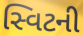
સ્વિટની